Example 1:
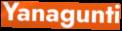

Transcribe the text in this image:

Yanagunti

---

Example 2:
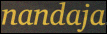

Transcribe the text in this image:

nandaja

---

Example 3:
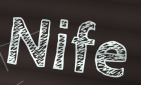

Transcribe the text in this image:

Nife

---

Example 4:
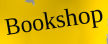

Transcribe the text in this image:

Bookshop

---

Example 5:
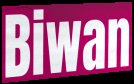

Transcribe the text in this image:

Biwan